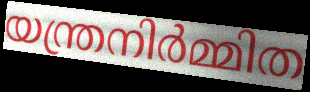
യന്ത്രനിർമ്മിത